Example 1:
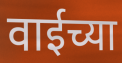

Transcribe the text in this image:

वाईच्या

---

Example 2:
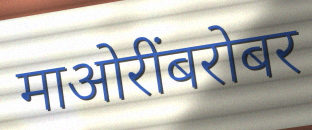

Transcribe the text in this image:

माओरींबरोबर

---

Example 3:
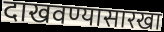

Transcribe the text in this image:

दाखवण्यासारखा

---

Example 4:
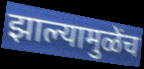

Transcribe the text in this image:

झाल्यामुळेंच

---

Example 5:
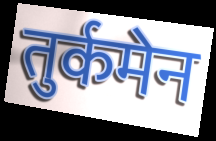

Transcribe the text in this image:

तुर्कमेन